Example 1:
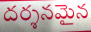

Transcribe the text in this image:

దర్శనమైన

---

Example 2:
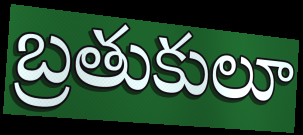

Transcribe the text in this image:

బ్రతుకులూ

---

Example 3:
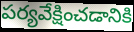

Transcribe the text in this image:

పర్యవేక్షించడానికి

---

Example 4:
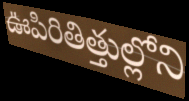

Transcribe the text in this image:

ఊపిరితిత్తుల్లోని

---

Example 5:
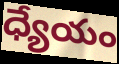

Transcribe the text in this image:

ధ్యేయం